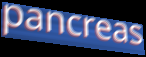
pancreas